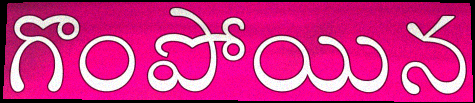
గొంపోయిన